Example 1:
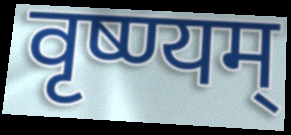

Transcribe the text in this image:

वृष्ण्यम्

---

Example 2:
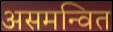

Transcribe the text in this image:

असमन्वित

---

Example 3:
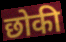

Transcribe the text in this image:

छोकी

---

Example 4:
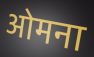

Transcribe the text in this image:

ओमना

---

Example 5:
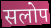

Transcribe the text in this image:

सलोप